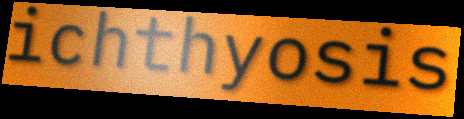
ichthyosis